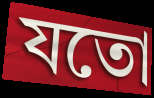
যতো